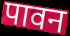
पावन